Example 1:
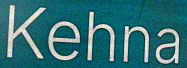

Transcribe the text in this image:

Kehna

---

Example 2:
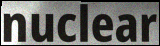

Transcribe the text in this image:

nuclear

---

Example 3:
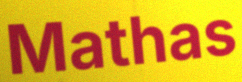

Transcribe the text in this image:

Mathas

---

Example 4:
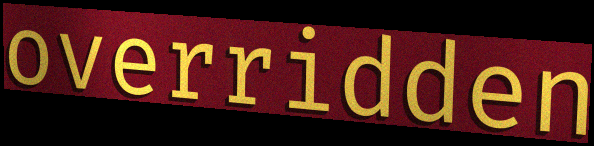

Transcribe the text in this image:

overridden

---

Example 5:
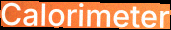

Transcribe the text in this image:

Calorimeter